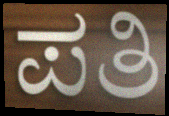
ಪತಿ